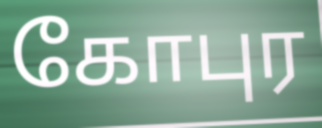
கோபுர